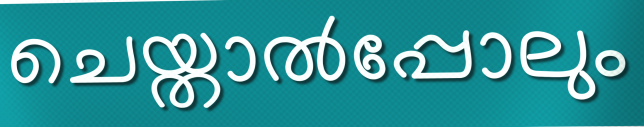
ചെയ്താൽപ്പോലും